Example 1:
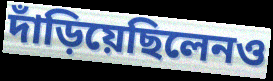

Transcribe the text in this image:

দাঁড়িয়েছিলেনও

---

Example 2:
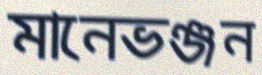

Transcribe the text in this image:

মানেভঞ্জন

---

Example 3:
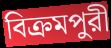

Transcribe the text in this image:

বিক্রমপুরী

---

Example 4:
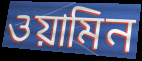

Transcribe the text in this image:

ওয়ামিন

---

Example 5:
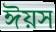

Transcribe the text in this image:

ঈয়স